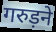
गरुड़ने